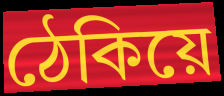
ঠেকিয়ে